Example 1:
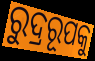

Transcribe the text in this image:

ରୁଦ୍ରରୂପକୁ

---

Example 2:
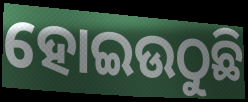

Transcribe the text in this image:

ହୋଇଉଠୁଛି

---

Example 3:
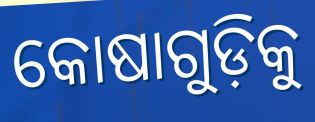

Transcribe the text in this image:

କୋଷାଗୁଡ଼ିକୁ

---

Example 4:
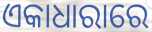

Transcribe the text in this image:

ଏକାଧାରାରେ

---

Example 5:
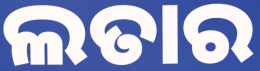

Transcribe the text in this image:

ଲତାର